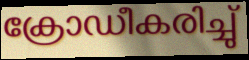
ക്രോഡീകരിച്ചു്